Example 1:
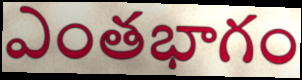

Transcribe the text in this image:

ఎంతభాగం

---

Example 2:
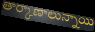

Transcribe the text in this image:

తార్కాణాలున్నాయి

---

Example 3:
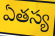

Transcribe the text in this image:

ఏతస్య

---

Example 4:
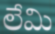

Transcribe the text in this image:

లేమి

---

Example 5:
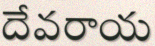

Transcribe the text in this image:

దేవరాయ